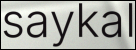
saykal